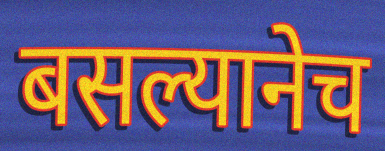
बसल्यानेच